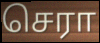
செரா